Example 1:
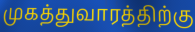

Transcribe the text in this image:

முகத்துவாரத்திற்கு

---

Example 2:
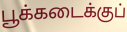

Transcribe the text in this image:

பூக்கடைக்குப்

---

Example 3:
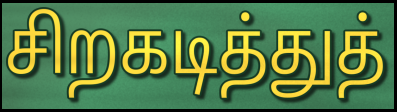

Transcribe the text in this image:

சிறகடித்துத்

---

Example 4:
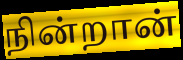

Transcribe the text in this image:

நின்றான்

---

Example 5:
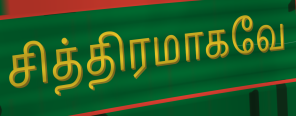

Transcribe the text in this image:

சித்திரமாகவே